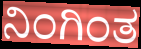
ನಿಂಗಿಂತ